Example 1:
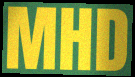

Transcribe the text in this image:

MHD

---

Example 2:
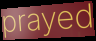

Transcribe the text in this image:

prayed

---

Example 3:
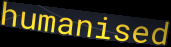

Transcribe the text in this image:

humanised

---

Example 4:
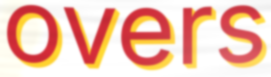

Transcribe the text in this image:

overs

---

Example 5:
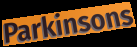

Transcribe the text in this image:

Parkinsons